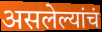
असलेल्यांचं